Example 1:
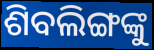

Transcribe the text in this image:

ଶିବଲିଙ୍ଗଙ୍କୁ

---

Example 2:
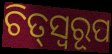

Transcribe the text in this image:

ଚିତ୍‌ସ୍ୱରୂପ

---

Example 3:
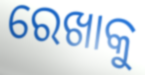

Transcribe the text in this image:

ରେଖାକୁ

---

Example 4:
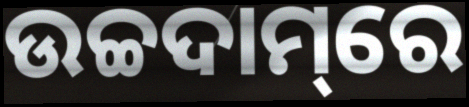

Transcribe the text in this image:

ଉଚ୍ଚଦାମ୍‌ରେ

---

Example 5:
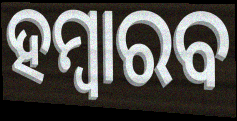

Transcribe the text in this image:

ହମ୍ବାରବ